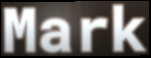
Mark